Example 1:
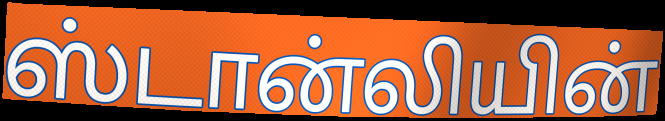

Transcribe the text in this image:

ஸ்டான்லியின்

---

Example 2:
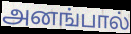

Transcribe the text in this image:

அனங்பால்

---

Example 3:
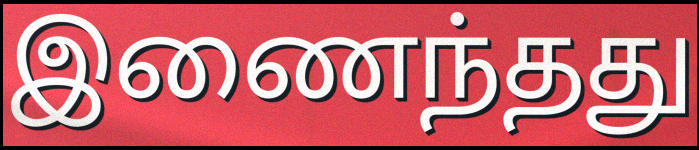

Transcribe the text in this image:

இணைந்தது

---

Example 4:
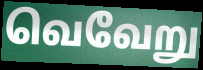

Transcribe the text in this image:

வெவேறு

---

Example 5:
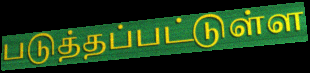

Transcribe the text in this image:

படுத்தப்பட்டுள்ள